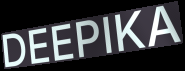
DEEPIKA